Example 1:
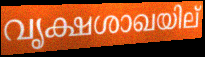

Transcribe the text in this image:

വൃക്ഷശാഖയില്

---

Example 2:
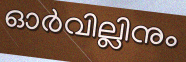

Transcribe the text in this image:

ഓർവില്ലിനും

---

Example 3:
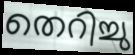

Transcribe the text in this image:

തെറിച്ചു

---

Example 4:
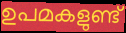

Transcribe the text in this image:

ഉപമകളുണ്ട്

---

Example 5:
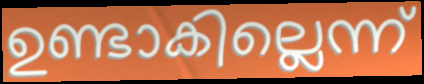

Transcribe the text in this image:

ഉണ്ടാകില്ലെന്ന്